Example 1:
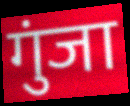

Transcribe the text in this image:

गुंजा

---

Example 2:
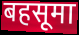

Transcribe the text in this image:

बहसूमा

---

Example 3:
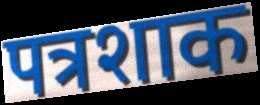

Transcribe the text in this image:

पत्रशाक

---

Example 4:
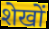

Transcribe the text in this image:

शेखों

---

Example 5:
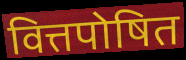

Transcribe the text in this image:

वित्तपोषित